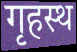
गृहस्‍थ